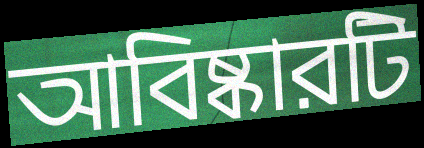
আবিষ্কারটি